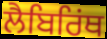
ਲੈਬਿਰਿਂਥ